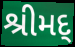
શ્રીમદ્